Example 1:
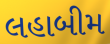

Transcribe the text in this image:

લહાબીમ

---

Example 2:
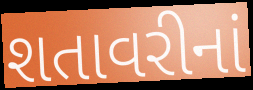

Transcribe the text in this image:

શતાવરીનાં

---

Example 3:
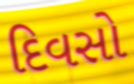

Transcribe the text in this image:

દિવસો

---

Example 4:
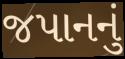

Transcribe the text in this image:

જપાનનું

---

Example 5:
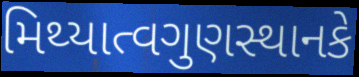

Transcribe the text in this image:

મિથ્યાત્વગુણસ્થાનકે